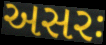
અસરઃ